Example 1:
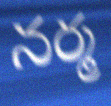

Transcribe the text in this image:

నర్మ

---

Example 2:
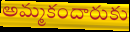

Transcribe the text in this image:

అమ్మకందారుకు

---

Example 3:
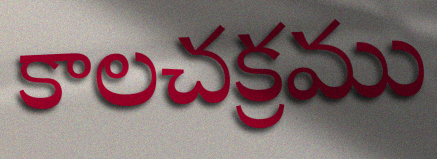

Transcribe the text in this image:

కాలచక్రము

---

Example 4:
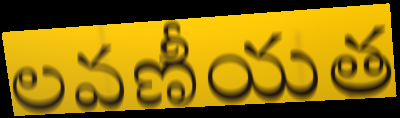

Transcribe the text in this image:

లవణీయత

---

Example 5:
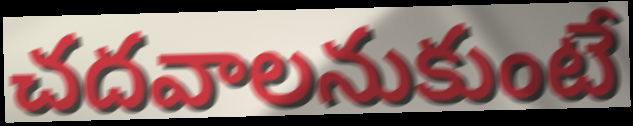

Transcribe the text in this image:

చదవాలనుకుంటే